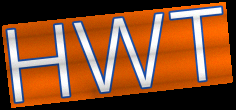
HWT